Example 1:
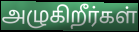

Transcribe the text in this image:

அழுகிறீர்கள்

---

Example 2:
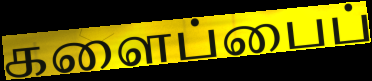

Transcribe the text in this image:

களைப்பைப்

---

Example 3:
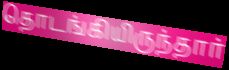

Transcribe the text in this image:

தொடங்கியிருந்தார்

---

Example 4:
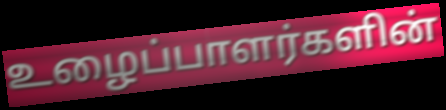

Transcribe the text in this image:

உழைப்பாளர்களின்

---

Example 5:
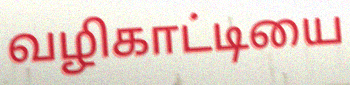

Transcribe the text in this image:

வழிகாட்டியை